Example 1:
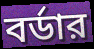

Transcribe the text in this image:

বর্ডার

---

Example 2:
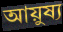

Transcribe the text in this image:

আয়ুষ্য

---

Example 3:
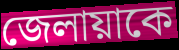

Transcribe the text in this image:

জেলায়াকে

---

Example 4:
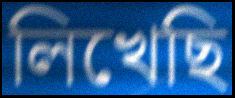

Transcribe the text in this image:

লিখেছি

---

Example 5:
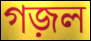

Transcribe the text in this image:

গজ়ল